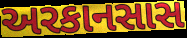
અરકાનસાસ